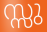
സ്സു